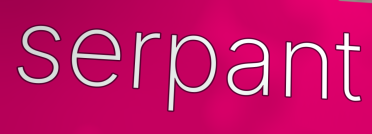
serpant